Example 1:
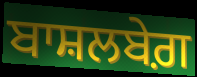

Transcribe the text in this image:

ਬਾਸ਼ਲਬੇਗ਼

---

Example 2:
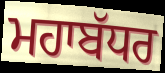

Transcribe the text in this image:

ਮਹਾਬੱਧਰ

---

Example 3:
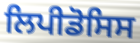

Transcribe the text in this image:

ਲਿਪੀਡੋਸਿਸ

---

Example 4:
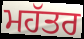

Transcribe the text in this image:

ਮਹੱਤਰ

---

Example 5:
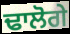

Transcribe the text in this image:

ਢਾਲੋਗੇ